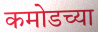
कमोडच्या